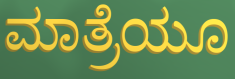
ಮಾತ್ರೆಯೂ